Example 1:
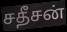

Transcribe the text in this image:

சதீசன்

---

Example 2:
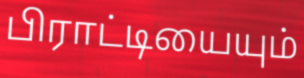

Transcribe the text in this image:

பிராட்டியையும்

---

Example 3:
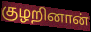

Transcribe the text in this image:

குழறினான்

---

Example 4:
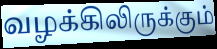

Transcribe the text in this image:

வழக்கிலிருக்கும்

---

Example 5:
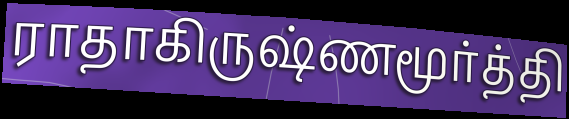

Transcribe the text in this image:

ராதாகிருஷ்ணமூர்த்தி